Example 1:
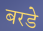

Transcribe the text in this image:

बरडे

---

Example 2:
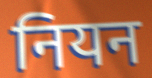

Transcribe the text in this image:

नियन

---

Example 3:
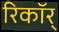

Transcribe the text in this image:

रिकॉर्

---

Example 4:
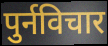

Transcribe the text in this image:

पुर्नविचार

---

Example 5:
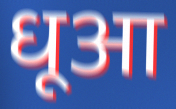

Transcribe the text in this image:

धूआ